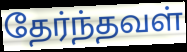
தேர்ந்தவள்